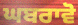
ਘਬਰਾਵੋ